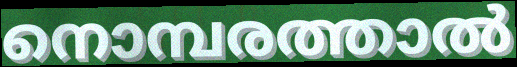
നൊമ്പരത്താൽ